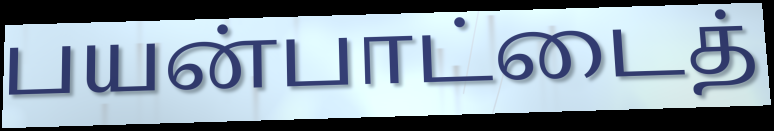
பயன்பாட்டைத்